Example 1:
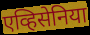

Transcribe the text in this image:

एव्हिसेनिया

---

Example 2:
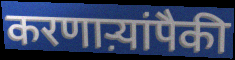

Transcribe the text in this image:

करणाऱ्‍यांपैकी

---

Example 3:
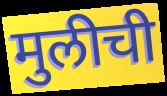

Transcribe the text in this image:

मुलीची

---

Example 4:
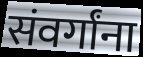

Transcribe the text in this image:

संवर्गांना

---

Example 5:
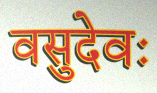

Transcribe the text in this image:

वसुदेवः